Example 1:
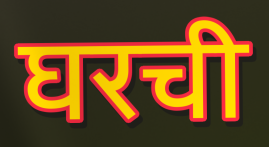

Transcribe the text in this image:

घरची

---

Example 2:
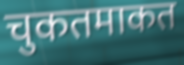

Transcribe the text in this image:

चुकतमाकत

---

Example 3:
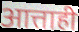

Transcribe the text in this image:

आत्ताही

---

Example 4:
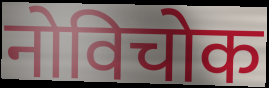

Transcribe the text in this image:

नोविचोक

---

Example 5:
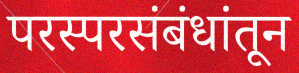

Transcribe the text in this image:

परस्परसंबंधांतून